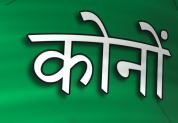
कोनों